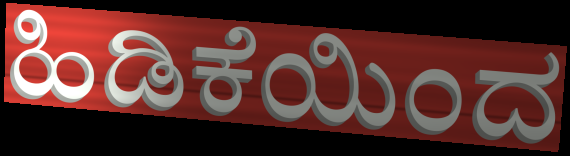
ಹಿಡಿಕೆಯಿಂದ